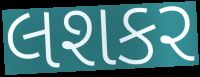
લશકર